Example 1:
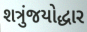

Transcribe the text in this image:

શત્રુંજયોદ્ધાર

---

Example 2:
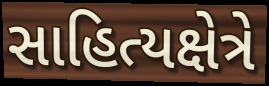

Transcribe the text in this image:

સાહિત્યક્ષેત્રે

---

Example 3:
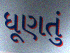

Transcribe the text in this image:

ધૂણતું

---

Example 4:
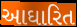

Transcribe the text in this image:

આઘારિત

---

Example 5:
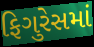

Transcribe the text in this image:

ફિગુરેસમાં